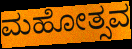
ಮಹೋತ್ಸವ